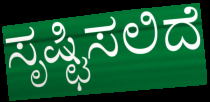
ಸೃಷ್ಟಿಸಲಿದೆ